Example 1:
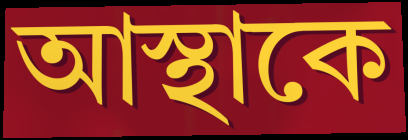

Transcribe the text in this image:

আস্থাকে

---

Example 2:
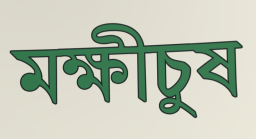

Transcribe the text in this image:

মক্ষীচুষ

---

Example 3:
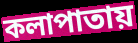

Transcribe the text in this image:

কলাপাতায়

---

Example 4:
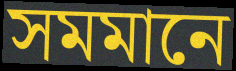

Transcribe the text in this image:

সমমানে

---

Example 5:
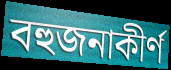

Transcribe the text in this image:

বহুজনাকীর্ণ